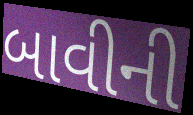
બાવીની